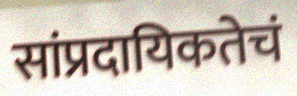
सांप्रदायिकतेचं